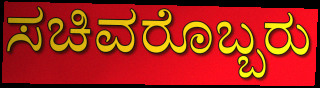
ಸಚಿವರೊಬ್ಬರು